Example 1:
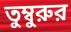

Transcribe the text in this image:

তুম্বুরুর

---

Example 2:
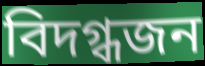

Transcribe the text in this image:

বিদগ্ধজন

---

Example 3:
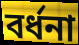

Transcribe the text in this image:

বর্ধনা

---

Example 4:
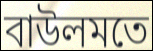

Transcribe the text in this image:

বাউলমতে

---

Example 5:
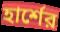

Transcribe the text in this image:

হার্শের